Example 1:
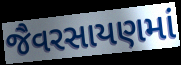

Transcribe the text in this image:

જૈવરસાયણમાં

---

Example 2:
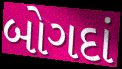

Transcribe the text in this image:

બોગદાં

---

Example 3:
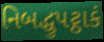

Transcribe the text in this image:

નિબદ્ધુપટ્ઠાકં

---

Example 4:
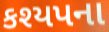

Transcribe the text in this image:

કશ્યપના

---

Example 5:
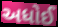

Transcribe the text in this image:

અધોઈ